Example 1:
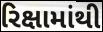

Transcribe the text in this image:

રિક્ષામાંથી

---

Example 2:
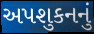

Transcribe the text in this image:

અપશુકનનું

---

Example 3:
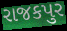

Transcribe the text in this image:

રાજકપુર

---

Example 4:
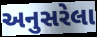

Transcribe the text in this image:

અનુસરેલા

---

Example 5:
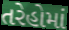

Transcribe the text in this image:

તરેહોમાં